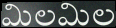
మిలమిల